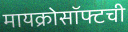
मायक्रोसॉफ्टची